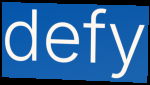
defy